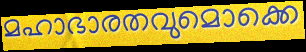
മഹാഭാരതവുമൊക്കെ